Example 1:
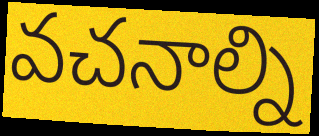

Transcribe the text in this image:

వచనాల్ని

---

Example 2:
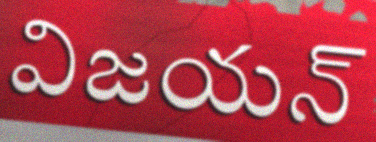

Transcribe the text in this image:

విజయన్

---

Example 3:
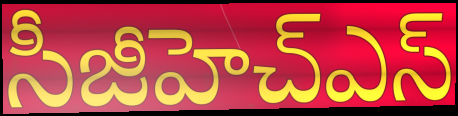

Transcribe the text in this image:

సీజీహెచ్ఎస్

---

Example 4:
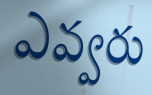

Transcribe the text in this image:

ఎవ్వరు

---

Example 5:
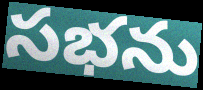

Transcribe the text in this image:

సభను